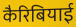
कैरिबियाई